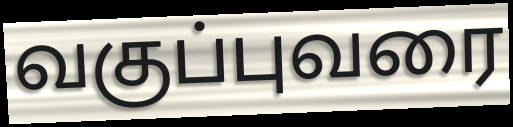
வகுப்புவரை